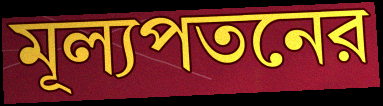
মূল্যপতনের